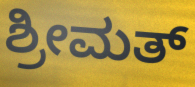
ಶ್ರೀಮತ್